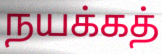
நயக்கத்